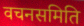
वचनसमिति